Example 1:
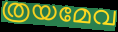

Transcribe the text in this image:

ത്രയമേവ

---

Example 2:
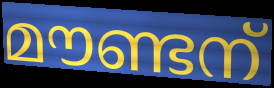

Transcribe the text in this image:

മൗണ്ടന്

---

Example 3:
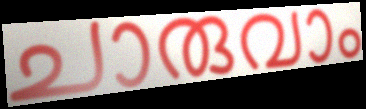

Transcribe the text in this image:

ചാരുവാം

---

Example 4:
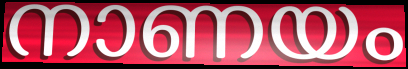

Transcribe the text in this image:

നാണയം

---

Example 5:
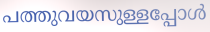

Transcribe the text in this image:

പത്തുവയസുള്ളപ്പോൾ